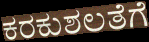
ಕರಕುಶಲತೆಗೆ